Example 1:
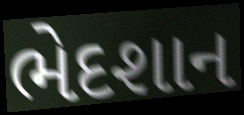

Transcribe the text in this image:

ભેદશાન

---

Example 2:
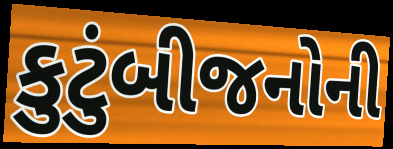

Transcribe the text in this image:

કુટુંબીજનોની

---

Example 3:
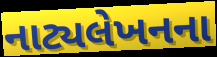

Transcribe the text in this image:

નાટ્યલેખનના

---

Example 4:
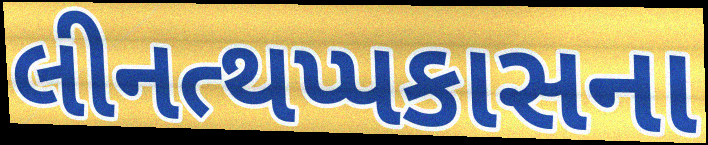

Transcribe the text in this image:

લીનત્થપ્પકાસના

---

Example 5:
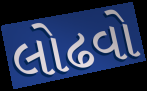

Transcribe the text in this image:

લોઢવો